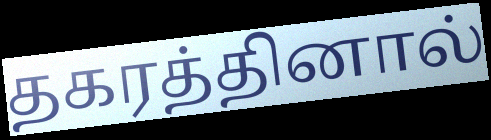
தகரத்தினால்